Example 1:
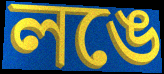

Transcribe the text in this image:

লঙে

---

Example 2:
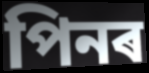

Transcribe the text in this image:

পিনৰ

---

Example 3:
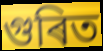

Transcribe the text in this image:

গুৰিত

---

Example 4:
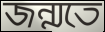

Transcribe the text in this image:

জন্মতে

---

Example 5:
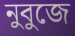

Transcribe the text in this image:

নুবুজে